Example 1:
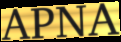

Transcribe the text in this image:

APNA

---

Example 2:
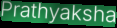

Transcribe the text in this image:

Prathyaksha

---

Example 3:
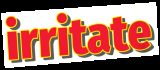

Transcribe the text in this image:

irritate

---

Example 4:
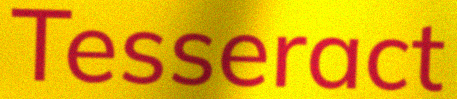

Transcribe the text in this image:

Tesseract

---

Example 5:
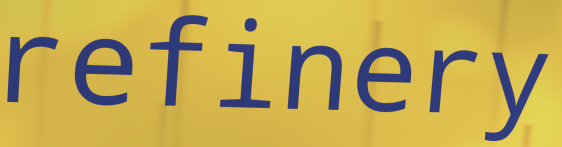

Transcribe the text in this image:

refinery